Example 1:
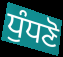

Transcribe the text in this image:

ਧੁੰਧਣੋ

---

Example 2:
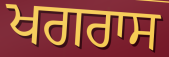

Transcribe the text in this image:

ਖਗਰਾਸ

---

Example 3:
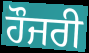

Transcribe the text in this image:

ਹੌਜਰੀ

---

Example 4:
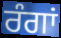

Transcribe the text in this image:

ਰੰਗਾਂ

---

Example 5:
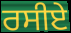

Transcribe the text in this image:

ਰਸੀਏ